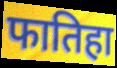
फातिहा